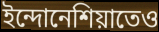
ইন্দোনেশিয়াতেও